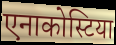
एनाकोस्टिया